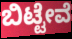
ಬಿಟ್ಟೇವೆ